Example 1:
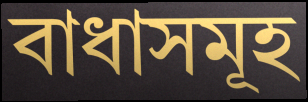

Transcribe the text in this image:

বাধাসমূহ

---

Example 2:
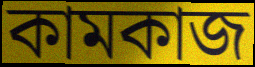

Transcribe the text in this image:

কামকাজ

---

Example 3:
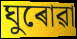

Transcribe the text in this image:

ঘুৰোৱা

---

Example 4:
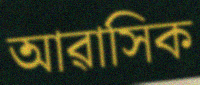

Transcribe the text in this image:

আৱাসিক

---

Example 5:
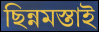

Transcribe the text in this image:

ছিন্নমস্তাই